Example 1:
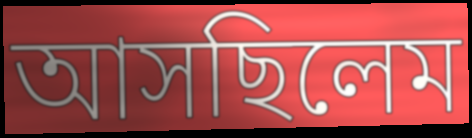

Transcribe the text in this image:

আসছিলেম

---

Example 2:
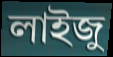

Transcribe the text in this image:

লাইজু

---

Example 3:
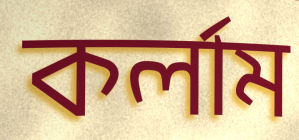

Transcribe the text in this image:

কর্লাম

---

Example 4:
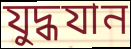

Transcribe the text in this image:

যুদ্ধযান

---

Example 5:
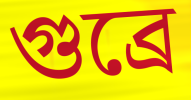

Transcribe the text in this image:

গুব্রে